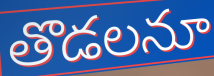
తొడలనూ